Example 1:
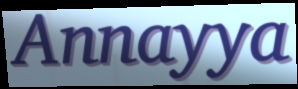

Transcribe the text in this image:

Annayya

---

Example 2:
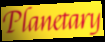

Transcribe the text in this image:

Planetary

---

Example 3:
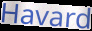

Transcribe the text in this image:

Havard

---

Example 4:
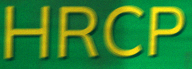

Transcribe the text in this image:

HRCP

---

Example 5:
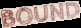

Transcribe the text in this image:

BOUND